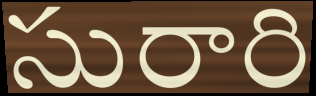
సురారి